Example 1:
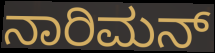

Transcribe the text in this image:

ನಾರಿಮನ್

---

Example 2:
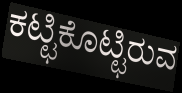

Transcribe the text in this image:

ಕಟ್ಟಿಕೊಟ್ಟಿರುವ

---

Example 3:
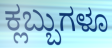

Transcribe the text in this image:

ಕ್ಲಬ್ಬುಗಳೂ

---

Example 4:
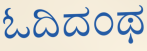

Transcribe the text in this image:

ಓದಿದಂಥ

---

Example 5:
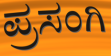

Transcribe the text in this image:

ಪ್ರಸಂಗಿ